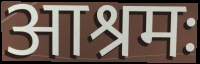
आश्रमः